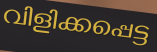
വിളിക്കപ്പെട്ട